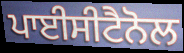
ਪਾਈਸੀਟੈਨੋਲ